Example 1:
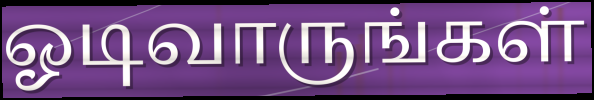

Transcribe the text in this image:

ஓடிவாருங்கள்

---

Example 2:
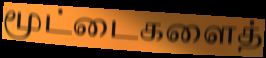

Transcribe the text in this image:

மூட்டைகளைத்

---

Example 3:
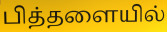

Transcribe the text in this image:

பித்தளையில்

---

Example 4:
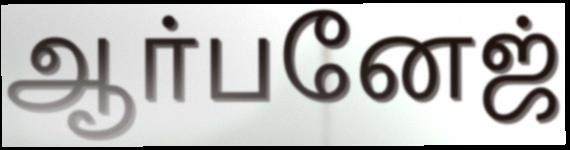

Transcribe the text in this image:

ஆர்பனேஜ்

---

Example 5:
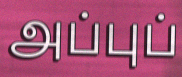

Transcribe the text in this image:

அப்புப்